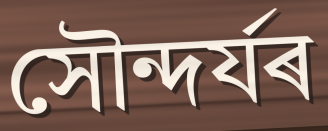
সৌন্দৰ্যৰ